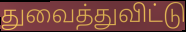
துவைத்துவிட்டு